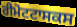
ਰੀਮੋਟਟਾਸਕਸ